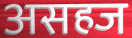
असहज